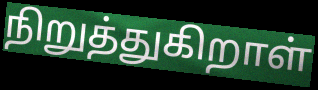
நிறுத்துகிறாள்